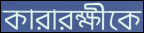
কারারক্ষীকে